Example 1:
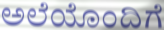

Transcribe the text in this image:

ಅಲೆಯೊಂದಿಗೆ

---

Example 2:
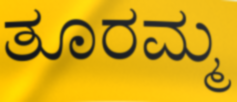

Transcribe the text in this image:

ತೂರಮ್ಮ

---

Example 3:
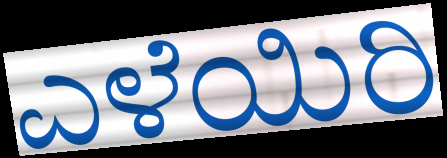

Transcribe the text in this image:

ಎಳೆಯಿರಿ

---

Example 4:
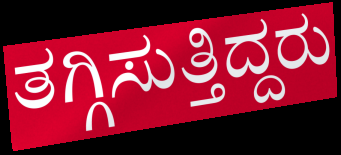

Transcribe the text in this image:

ತಗ್ಗಿಸುತ್ತಿದ್ದರು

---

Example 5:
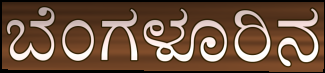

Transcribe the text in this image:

ಬೆಂಗಳೂರಿನ